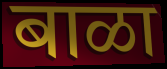
बाळा